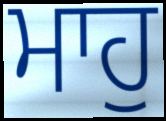
ਮਾਹੁ